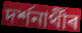
দৰ্শনাৰ্থীৰ